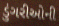
ડુંગરીઓની